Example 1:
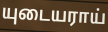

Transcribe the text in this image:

யுடையராய்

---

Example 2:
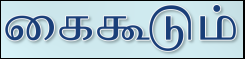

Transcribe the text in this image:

கைகூடும்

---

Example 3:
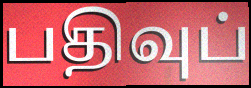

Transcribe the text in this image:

பதிவுப்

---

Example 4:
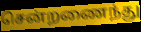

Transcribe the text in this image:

சென்றணைந்து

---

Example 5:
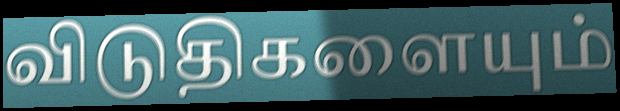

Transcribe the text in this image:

விடுதிகளையும்